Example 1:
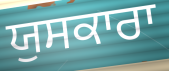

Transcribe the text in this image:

ਯੁਸਕਾਰਾ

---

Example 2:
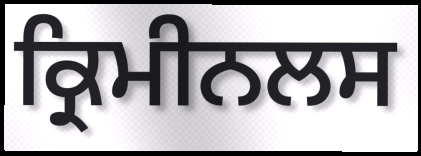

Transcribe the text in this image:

ਕ੍ਰਿਮੀਨਲਸ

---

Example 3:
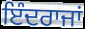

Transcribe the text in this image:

ਇੰਦਰਾਜਾਂ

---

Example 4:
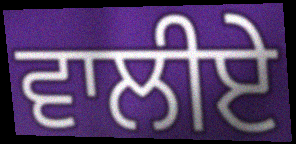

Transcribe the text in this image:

ਵਾਲੀਏ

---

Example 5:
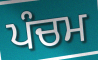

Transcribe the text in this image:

ਪੰਚਮ